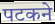
पटकने